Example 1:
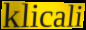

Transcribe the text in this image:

klicali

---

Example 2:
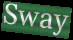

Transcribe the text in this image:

Sway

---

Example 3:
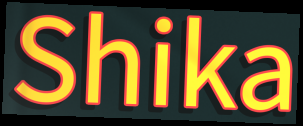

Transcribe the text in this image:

Shika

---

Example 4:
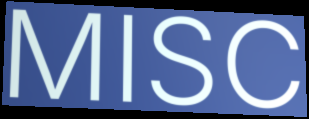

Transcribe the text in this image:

MISC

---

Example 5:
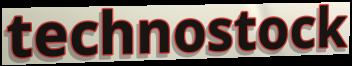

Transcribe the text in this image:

technostock